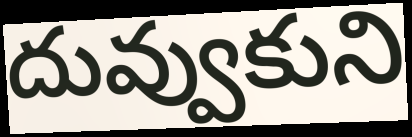
దువ్వుకుని